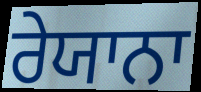
ਰੇਯਾਨਾ